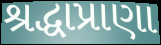
શ્રદ્ધાપ્રાણા